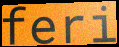
feri